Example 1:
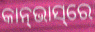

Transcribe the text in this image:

କାନ୍‌ଭାସ୍‌ରେ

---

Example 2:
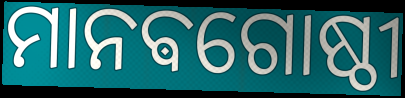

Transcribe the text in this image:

ମାନଵଗୋଷ୍ଠୀ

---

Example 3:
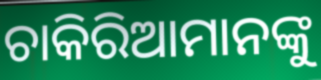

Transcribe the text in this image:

ଚାକିରିଆମାନଙ୍କୁ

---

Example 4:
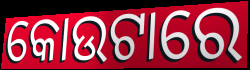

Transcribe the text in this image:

କୋଉଟାରେ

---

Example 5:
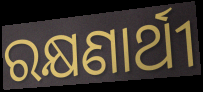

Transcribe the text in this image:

ରକ୍ଷଣାର୍ଥୀ